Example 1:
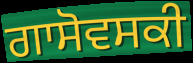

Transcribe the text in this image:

ਗਾਸੋਵਸਕੀ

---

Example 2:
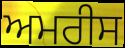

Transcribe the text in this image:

ਅਮਰੀਸ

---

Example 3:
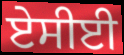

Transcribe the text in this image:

ਏਸੀਈ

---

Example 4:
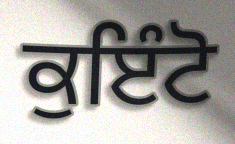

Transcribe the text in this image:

ਕੁਇੰਟੋ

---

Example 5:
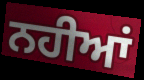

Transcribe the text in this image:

ਨਹੀਆਂ